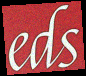
eds